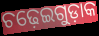
ଚଢ଼େଇଗୁଡ଼ାକ